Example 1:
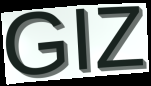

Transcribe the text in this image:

GIZ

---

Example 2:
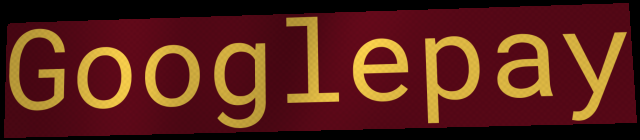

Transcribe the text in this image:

Googlepay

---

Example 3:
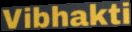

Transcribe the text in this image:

Vibhakti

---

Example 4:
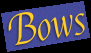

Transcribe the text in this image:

Bows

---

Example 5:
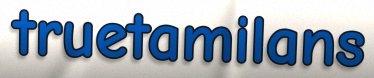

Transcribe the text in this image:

truetamilans